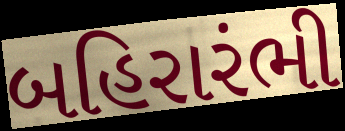
બહિરારંભી